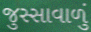
જુસ્સાવાળું